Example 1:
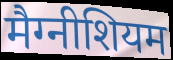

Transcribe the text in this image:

मैग्नीशियम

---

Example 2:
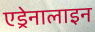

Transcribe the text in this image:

एड्रेनालाइन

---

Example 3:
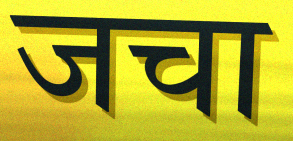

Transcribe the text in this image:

जचा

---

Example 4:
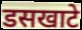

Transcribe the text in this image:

डसखाटे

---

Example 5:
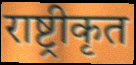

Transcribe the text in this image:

राष्ट्रीकृत